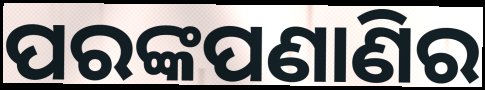
ପରଙ୍କପଣାଣିର